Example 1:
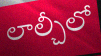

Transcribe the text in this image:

లాల్చీలో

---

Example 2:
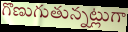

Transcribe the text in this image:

గొణుగుతున్నట్లుగా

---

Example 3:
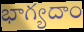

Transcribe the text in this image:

భాగ్యదాం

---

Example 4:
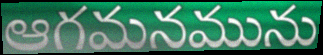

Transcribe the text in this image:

ఆగమనమును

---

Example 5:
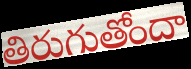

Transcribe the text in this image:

తిరుగుతోందా